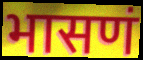
भासणं